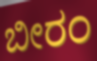
ಬೀರಂ